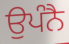
ਉਪੰਨੈ